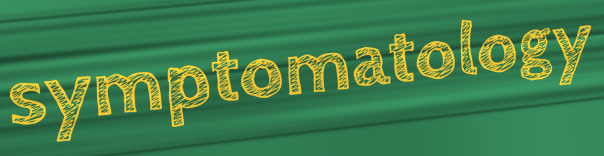
symptomatology